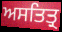
ਅਸਤਿਤ੍ਰ